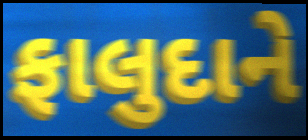
ફાલુદાને